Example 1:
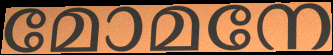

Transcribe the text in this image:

മോമനേ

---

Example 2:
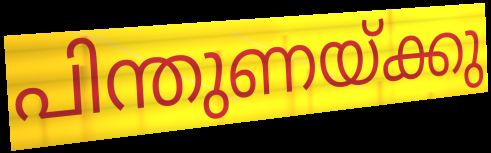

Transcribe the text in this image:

പിന്തുണയ്ക്കു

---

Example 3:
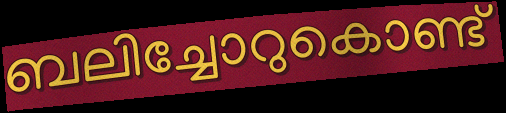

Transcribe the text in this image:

ബലിച്ചോറുകൊണ്ട്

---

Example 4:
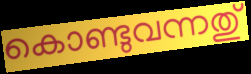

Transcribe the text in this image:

കൊണ്ടുവന്നതു്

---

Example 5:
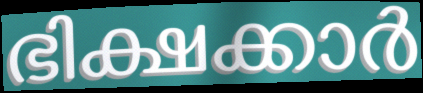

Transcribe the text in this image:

ഭിക്ഷക്കാർ